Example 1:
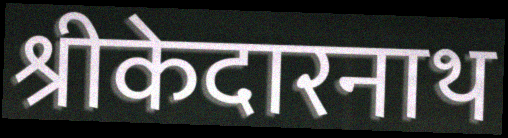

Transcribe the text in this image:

श्रीकेदारनाथ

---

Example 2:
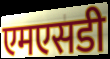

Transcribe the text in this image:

एमएसडी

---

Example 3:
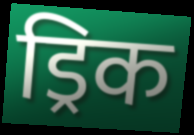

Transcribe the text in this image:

ड्रिक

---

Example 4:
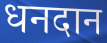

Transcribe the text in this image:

धनदान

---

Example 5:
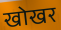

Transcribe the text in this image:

खोखर